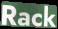
Rack